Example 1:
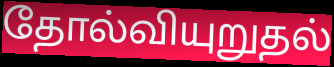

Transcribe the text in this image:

தோல்வியுறுதல்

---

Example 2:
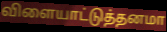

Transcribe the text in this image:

விளையாட்டுத்தனமா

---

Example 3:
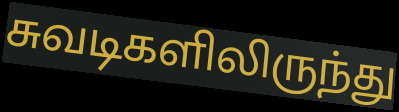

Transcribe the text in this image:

சுவடிகளிலிருந்து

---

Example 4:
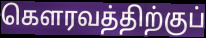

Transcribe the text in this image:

கௌரவத்திற்குப்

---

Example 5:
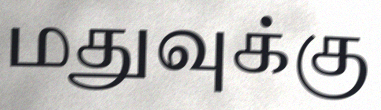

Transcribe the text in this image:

மதுவுக்கு